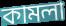
কামলা